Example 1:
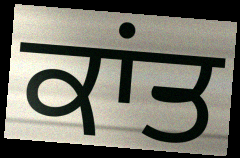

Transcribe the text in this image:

ਕਾਂਤ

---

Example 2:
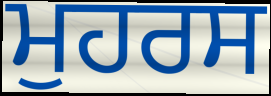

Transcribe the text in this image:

ਮੁਹਰਸ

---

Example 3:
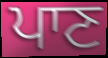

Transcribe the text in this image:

ਪਾਣ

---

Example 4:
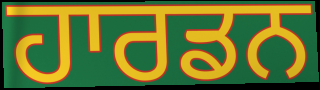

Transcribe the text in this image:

ਹਾਰਡਨ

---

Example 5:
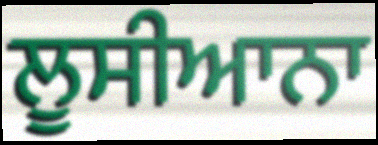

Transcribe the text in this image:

ਲੂਸੀਆਨਾ